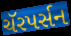
ચૅરપર્સન